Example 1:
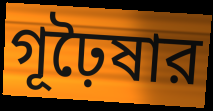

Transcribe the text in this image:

গূঢ়ৈষার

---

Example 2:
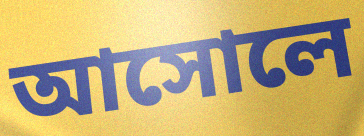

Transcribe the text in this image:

আসোলে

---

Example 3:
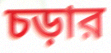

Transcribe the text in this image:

চড়ার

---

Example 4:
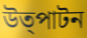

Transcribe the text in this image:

উত্পাটন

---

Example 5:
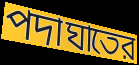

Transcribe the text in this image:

পদাঘাতের